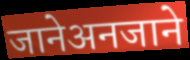
जानेअनजाने